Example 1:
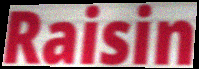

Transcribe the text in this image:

Raisin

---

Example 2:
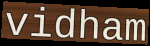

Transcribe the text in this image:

vidham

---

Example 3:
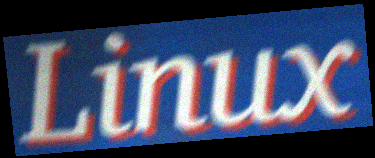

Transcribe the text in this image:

Linux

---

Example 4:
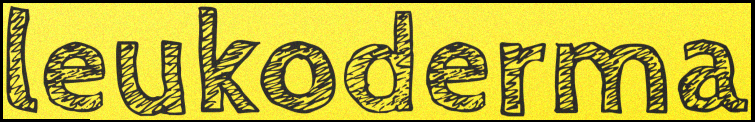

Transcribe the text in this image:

leukoderma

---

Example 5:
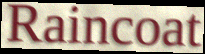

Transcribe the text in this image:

Raincoat